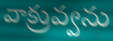
వాక్రువ్వను